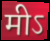
मीऽ